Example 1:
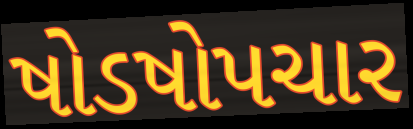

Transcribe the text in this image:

ષોડષોપચાર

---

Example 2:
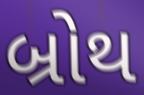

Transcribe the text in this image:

બ્રોથ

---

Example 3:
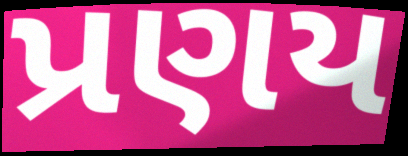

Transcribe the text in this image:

પ્રણય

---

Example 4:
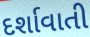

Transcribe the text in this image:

દર્શાવાતી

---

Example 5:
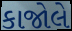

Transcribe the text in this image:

કાજોલે